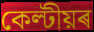
কেল্টীয়ৰ